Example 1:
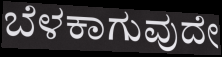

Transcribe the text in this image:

ಬೆಳಕಾಗುವುದೇ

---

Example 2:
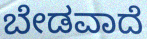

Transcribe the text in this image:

ಬೇಡವಾದೆ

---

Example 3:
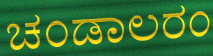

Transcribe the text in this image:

ಚಂಡಾಲರಂ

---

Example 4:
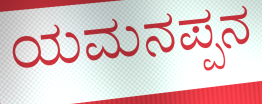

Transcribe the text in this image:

ಯಮನಪ್ಪನ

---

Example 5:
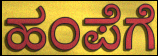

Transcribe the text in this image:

ಹಂಪೆಗೆ